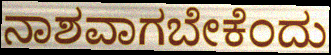
ನಾಶವಾಗಬೇಕೆಂದು